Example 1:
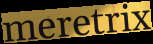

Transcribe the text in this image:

meretrix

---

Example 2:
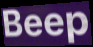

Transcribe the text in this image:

Beep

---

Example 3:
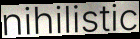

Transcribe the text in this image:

nihilistic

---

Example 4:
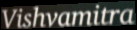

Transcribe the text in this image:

Vishvamitra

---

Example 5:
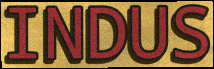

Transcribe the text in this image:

INDUS